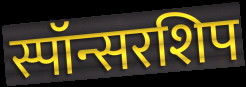
स्पॉन्सरशिप